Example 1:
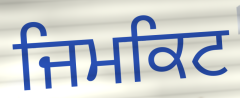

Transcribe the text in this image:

ਜਿਮਕਿਟ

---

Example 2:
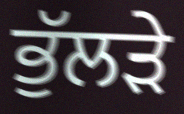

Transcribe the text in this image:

ਭੁੱਲੜੇ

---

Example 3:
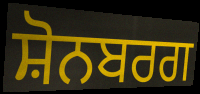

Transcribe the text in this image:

ਸ਼ੋਨਬਰਗ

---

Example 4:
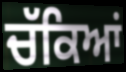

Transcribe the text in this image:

ਚੱਕਿਆਂ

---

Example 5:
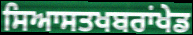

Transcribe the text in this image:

ਸਿਆਸਤਖਬਰਾਂਖੇਡ